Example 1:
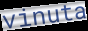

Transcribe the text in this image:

vinuta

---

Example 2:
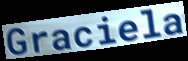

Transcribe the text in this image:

Graciela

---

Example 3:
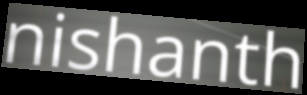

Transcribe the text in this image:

nishanth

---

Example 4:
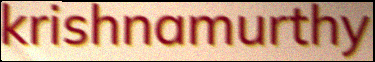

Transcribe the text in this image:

krishnamurthy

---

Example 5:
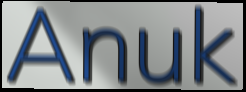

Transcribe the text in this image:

Anuk